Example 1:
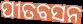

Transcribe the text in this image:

ପୀତବସନ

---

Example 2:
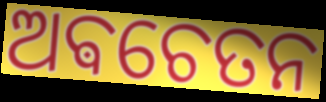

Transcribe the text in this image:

ଅଵଚେତନ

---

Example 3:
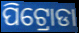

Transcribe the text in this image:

ପିଟ୍ରୋଡା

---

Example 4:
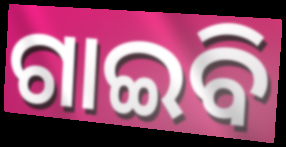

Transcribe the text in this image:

ଗାଇବି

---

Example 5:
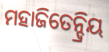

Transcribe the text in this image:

ମହାଜିତେନ୍ଦ୍ରିୟ